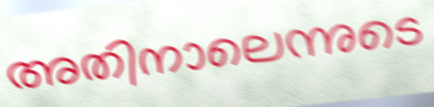
അതിനാലെന്നുടെ